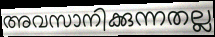
അവസാനിക്കുന്നതല്ല